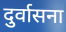
दुर्वासना